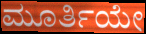
ಮೂರ್ತಿಯೇ